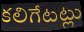
కలిగేటట్లు